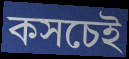
কসচেই